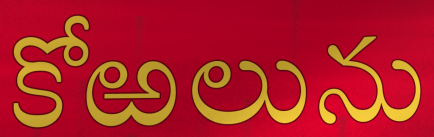
కోఱలును